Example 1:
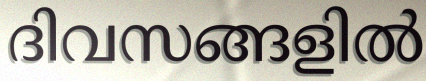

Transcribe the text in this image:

ദിവസങ്ങളിൽ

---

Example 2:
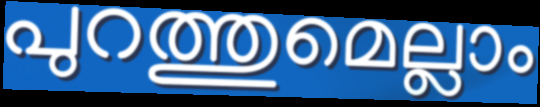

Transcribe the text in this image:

പുറത്തുമെല്ലാം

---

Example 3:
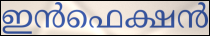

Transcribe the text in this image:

ഇൻഫെക്ഷൻ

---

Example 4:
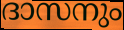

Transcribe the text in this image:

ദാസനും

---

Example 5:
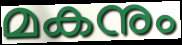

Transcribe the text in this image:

മകനും